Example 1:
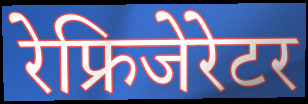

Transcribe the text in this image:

रेफ्रिजेरेटर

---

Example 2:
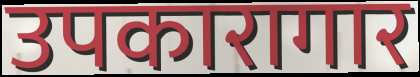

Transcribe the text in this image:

उपकारागार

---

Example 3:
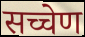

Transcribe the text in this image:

सच्चेण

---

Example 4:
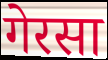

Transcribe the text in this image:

गेरसा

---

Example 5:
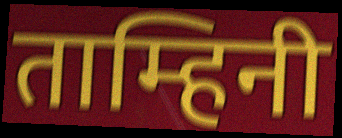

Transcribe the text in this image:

ताम्हिनी